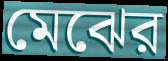
মেঝের